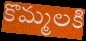
కొమ్మలకి